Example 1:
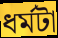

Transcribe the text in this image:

ধর্মটা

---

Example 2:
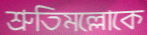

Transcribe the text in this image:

শ্রুতিমল্লোকে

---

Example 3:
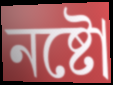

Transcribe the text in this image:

নষ্টো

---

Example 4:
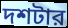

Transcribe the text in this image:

দশটার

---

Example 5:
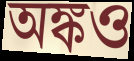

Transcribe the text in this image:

অঙ্কও